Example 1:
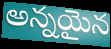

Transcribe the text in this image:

అన్నయైన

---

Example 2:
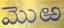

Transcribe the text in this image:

మొఱ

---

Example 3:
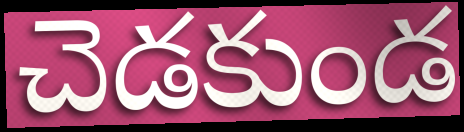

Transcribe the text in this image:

చెడకుండ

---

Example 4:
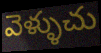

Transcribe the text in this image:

వెళ్ళుచు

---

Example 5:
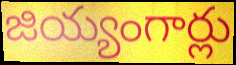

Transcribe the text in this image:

జియ్యంగార్లు